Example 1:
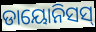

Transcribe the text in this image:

ଡାୟୋନିସସ୍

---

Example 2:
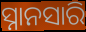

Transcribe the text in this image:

ସ୍ନାନସାରି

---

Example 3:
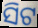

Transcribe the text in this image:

ସିଟ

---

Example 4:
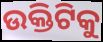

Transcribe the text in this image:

ଉକ୍ତିଟିକୁ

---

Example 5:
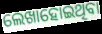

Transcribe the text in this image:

ଲେଖାହୋଇଥିବା